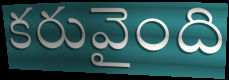
కరువైంది